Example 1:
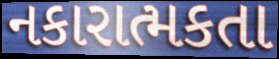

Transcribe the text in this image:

નકારાત્મકતા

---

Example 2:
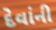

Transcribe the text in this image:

દેવાંની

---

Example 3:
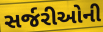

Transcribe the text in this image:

સર્જરીઓની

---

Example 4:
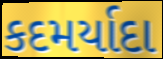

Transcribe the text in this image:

કદમર્યાદા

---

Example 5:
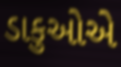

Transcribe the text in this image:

ડાકુઓએ